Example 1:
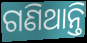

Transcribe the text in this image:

ଗଣିଥାନ୍ତି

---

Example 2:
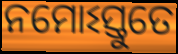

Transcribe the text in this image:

ନମୋଽସ୍ତୁତେ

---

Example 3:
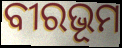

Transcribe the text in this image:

ବୀରଭୂମ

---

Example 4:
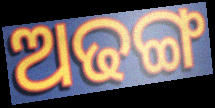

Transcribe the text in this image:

ଅଢଙ୍ଗ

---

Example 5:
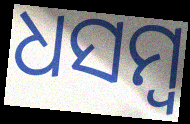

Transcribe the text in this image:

ଧସମ୍ବ